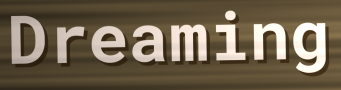
Dreaming